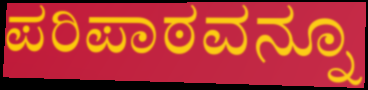
ಪರಿಪಾಠವನ್ನೂ